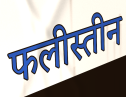
फलीस्तीन